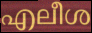
എലീശ